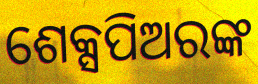
ଶେକ୍ସପିଅରଙ୍କ